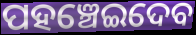
ପହଞ୍ଚେଇଦେବ